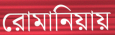
রোমানিয়ায়